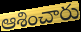
ఆశించారు